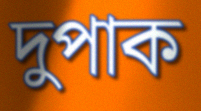
দুপাক